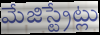
మేజిస్ట్రేట్లు